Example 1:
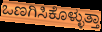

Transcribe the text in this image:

ಒಣಗಿಸಿಕೊಳ್ಳುತ್ತಾ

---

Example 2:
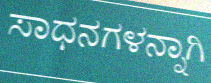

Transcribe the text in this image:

ಸಾಧನಗಳನ್ನಾಗಿ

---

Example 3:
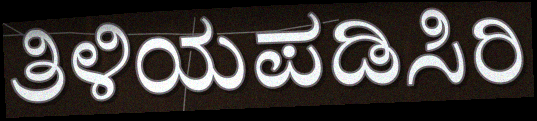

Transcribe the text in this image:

ತಿಳಿಯಪಡಿಸಿರಿ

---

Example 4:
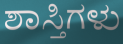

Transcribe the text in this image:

ಶಾಸ್ತಿಗಳು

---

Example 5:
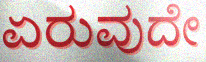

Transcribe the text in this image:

ಏರುವುದೇ